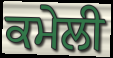
ਕਮੇਲੀ